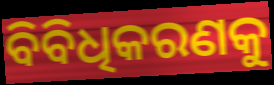
ବିବିଧିକରଣକୁ